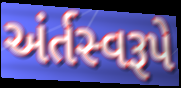
અંર્તસ્વરૂપે